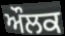
ਔਲਕ